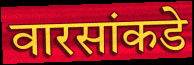
वारसांकडे